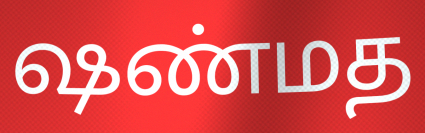
ஷண்மத